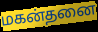
மகன்தனை